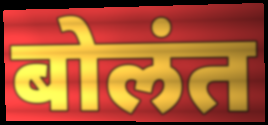
बोलंत